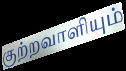
குற்றவாளியும்